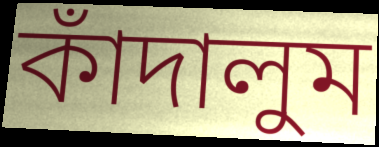
কাঁদালুম